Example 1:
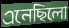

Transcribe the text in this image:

এনেছিলো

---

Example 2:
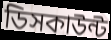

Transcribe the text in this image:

ডিসকাউন্ট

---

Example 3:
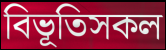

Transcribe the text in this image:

বিভূতিসকল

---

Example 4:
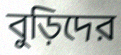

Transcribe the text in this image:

বুড়িদের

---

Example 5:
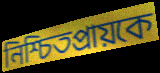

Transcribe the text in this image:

নিশ্চিতপ্রায়কে